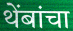
थेंबांचा